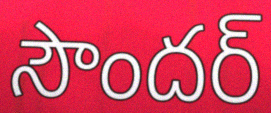
సౌందర్